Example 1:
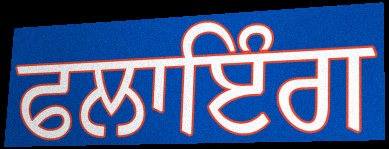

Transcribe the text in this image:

ਫਲਾਇੰਗ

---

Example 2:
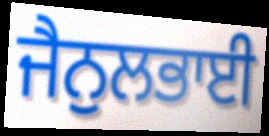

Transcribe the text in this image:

ਜੈਨੁਲਭਾਈ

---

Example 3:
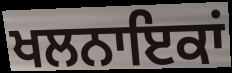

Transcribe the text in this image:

ਖਲਨਾਇਕਾਂ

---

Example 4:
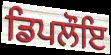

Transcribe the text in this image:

ਡਿਪਲੌਇ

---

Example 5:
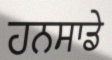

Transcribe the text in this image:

ਹਨਸਾਡੇ